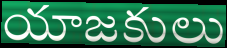
యాజకులు